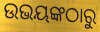
ଉଭୟଙ୍କଠାରୁ